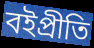
বইপ্রীতি